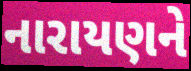
નારાયણને